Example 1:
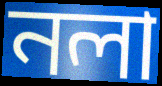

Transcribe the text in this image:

নলা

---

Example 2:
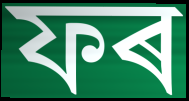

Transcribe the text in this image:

ফৰ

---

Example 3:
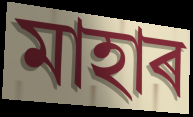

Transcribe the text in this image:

মাহাৰ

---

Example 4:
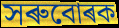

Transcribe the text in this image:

সৰুবোৰক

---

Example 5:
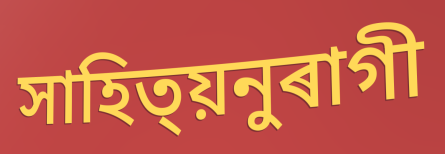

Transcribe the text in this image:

সাহিত্য়নুৰাগী